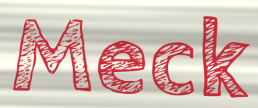
Meck